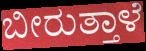
ಬೀರುತ್ತಾಳೆ